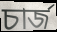
চাৰ্জ